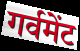
गर्वमेंट